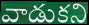
వాడుకని